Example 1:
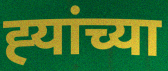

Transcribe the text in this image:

ह्‍यांच्या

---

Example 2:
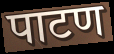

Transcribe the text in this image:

पाटण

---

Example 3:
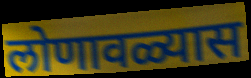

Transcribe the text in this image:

लोणावळ्यास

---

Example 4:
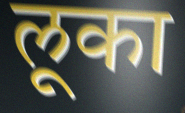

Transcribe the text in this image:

लूका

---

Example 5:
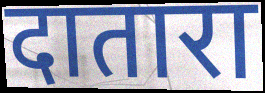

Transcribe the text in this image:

दातारा